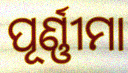
ପୂର୍ଣ୍ଣୀମା